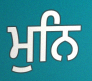
ਮੁਨਿ